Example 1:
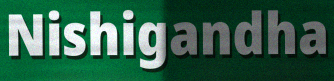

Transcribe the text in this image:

Nishigandha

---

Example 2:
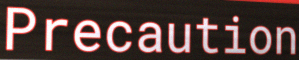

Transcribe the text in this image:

Precaution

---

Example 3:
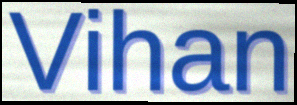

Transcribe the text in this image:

Vihan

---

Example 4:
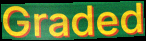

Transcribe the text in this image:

Graded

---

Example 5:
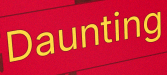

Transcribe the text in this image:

Daunting